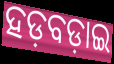
ହଡ଼ବଡ଼ାଇ